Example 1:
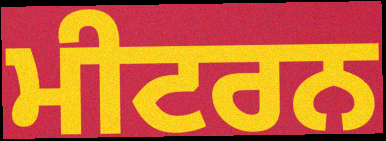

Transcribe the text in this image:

ਮੀਟਰਨ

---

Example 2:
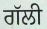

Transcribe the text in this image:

ਗੱਲੀ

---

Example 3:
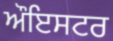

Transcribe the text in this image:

ਔਇਸਟਰ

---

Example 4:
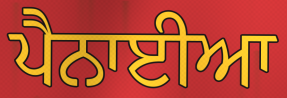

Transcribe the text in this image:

ਪੈਨਾਈਆ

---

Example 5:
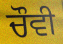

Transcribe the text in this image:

ਚੌਵੀ